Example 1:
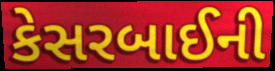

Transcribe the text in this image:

કેસરબાઈની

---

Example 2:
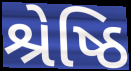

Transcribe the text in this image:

શ્રેષ્ઠિ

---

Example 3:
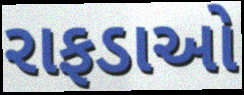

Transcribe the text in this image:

રાફડાઓ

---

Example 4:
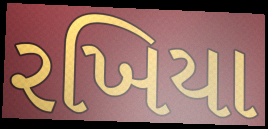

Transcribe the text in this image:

રખિયા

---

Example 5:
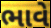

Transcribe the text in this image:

ભાવે